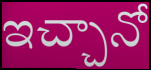
ఇచ్చానో